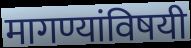
मागण्यांविषयी